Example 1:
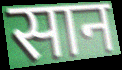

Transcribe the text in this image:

सान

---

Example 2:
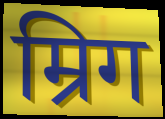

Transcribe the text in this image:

म्रिग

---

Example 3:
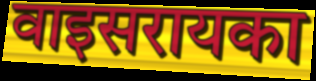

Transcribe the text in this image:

वाइसरायका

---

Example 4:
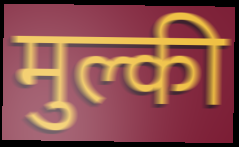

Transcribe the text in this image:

मुल्की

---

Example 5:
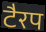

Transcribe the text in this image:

टैरप